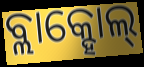
ବ୍ଲାକ୍ହୋଲ୍